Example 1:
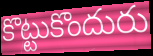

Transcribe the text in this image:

కొట్టుకొందురు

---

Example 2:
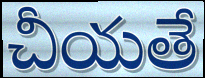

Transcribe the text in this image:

చీయతే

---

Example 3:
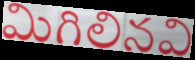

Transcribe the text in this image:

మిగిలినవి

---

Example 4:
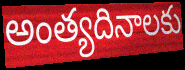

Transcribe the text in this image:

అంత్యదినాలకు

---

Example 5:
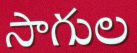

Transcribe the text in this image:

సాగుల